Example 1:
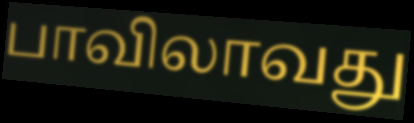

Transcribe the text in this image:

பாவிலாவது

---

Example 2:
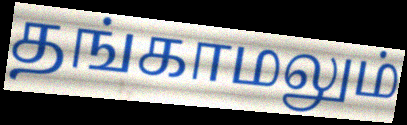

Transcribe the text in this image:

தங்காமலும்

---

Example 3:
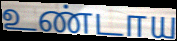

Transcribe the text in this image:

உண்டாய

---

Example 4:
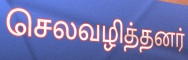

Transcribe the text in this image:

செலவழித்தனர்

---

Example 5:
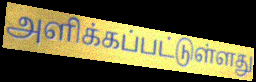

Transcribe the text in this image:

அளிக்கப்பட்டுள்ளது